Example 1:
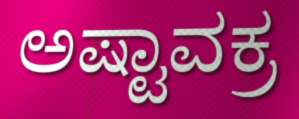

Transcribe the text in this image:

ಅಷ್ಟಾವಕ್ರ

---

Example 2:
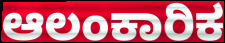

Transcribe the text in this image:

ಆಲಂಕಾರಿಕ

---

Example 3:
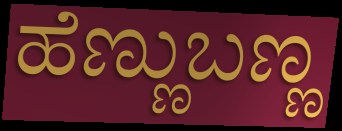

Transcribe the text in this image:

ಹೆಣ್ಣುಬಣ್ಣ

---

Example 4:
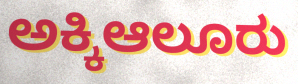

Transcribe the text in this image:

ಅಕ್ಕಿಆಲೂರು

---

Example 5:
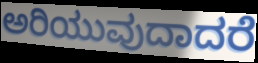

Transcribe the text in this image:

ಅರಿಯುವುದಾದರೆ